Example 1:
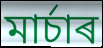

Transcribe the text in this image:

মাৰ্চাৰ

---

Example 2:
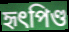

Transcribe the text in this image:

হৃৎপিণ্ড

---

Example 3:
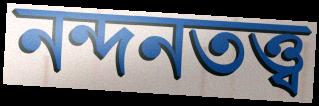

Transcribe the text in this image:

নন্দনতত্ত্ব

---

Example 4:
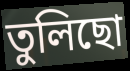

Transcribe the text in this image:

তুলিছো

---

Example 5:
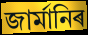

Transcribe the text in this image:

জাৰ্মানিৰ